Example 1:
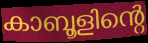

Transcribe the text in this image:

കാബൂളിന്റെ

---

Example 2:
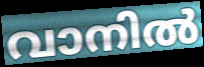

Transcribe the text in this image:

വാനിൽ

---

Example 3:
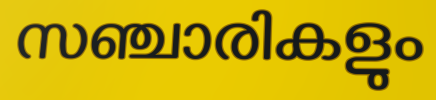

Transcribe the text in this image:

സഞ്ചാരികളും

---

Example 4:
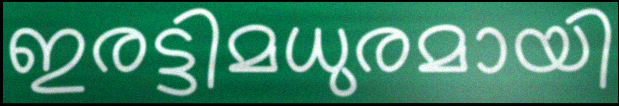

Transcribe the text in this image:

ഇരട്ടിമധുരമായി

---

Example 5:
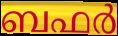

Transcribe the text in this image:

ബഫർ